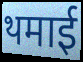
थमाई